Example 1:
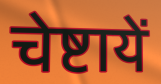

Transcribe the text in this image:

चेष्टायें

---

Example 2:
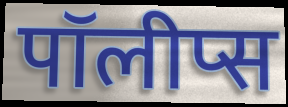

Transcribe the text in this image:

पॉलीप्स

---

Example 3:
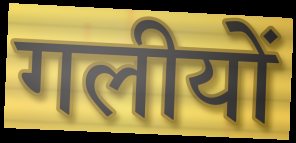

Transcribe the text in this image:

गलीयों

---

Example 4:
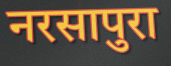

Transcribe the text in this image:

नरसापुरा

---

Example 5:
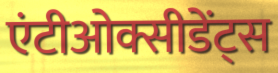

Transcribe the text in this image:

एंटीओक्सीडेंट्स